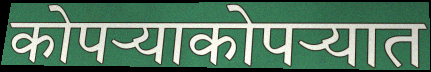
कोपऱ्याकोपऱ्यात